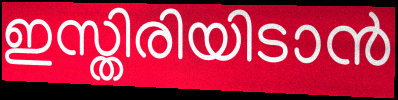
ഇസ്തിരിയിടാൻ